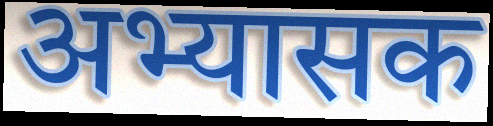
अभ्यासक